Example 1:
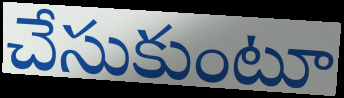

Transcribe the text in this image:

చేసుకుంటూ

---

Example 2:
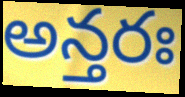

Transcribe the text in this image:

అన్తరః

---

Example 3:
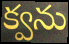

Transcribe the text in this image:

క్వను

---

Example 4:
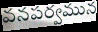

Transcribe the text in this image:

వనపర్వమున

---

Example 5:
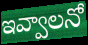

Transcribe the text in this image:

ఇవ్వాలనో